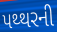
પથ્થરની